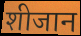
शीजान